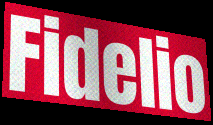
Fidelio